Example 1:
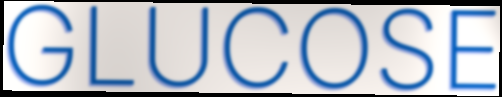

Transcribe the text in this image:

GLUCOSE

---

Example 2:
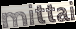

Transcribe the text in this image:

mittai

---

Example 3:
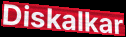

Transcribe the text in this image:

Diskalkar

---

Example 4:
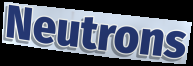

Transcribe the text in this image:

Neutrons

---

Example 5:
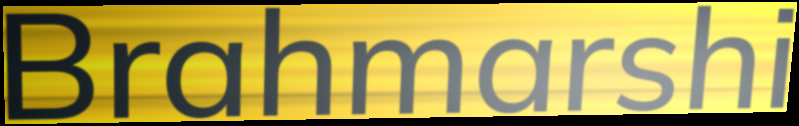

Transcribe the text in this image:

Brahmarshi